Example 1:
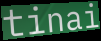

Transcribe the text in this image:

tinai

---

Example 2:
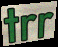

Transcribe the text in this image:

trr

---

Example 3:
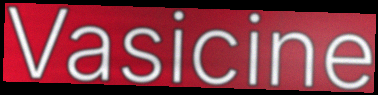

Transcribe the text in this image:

Vasicine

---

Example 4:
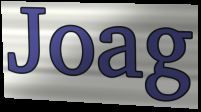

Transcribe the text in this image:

Joag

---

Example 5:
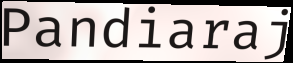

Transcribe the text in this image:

Pandiaraj